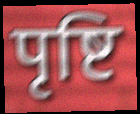
पृष्टि